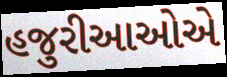
હજુરીઆઓએ